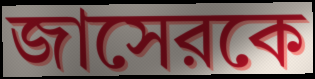
জাসেরকে